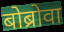
बोब्रोवा